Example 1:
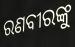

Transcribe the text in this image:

ରଣବୀରଙ୍କୁ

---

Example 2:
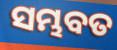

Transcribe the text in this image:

ସମ୍ଭବତ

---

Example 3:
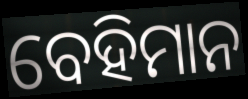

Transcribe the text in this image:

ବେହିମାନ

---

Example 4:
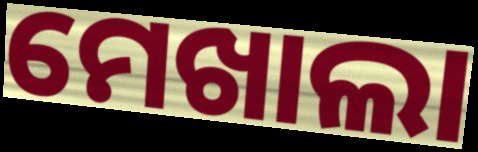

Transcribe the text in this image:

ମେଖାଲା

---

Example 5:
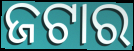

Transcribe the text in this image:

ଜଟାର